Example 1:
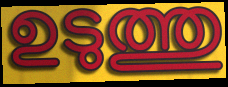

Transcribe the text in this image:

ഉടുത്തു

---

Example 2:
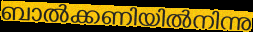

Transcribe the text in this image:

ബാൽക്കണിയിൽനിന്നു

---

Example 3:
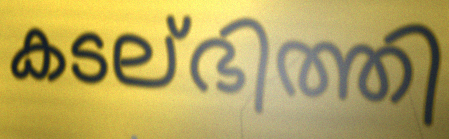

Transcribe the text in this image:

കടല്ഭിത്തി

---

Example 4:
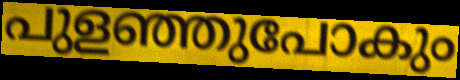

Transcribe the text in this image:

പുളഞ്ഞുപോകും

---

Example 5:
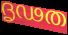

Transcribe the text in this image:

ദൃഢത